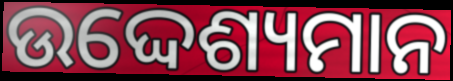
ଉଦ୍ଦେଶ୍ୟମାନ